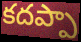
కదప్పా